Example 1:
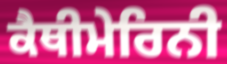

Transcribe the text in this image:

ਕੈਥੀਮੇਰਿਨੀ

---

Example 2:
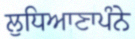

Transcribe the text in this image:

ਲੁਧਿਆਣਾਪੰਨੇ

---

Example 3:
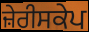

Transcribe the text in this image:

ਜ਼ੇਰੀਸਕੇਪ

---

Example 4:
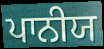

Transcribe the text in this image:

ਪਾਨੀਯ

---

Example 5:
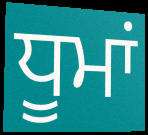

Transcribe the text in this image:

ਧੂਮਾਂ